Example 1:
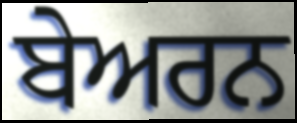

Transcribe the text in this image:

ਬੇਅਰਨ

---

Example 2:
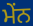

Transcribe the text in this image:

ਮੇਂਨ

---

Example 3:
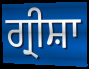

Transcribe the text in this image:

ਗ੍ਰੀਸ਼ਾ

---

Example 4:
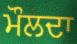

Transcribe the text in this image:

ਮੌਲਦਾ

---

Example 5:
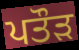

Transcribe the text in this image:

ਪਤੌੜ